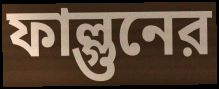
ফাল্গুনের